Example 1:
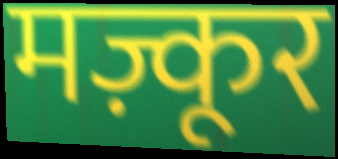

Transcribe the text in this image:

मज़्कूर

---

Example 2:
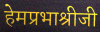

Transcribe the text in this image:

हेमप्रभाश्रीजी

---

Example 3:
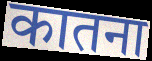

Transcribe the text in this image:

कातना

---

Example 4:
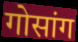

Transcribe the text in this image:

गोसांग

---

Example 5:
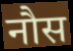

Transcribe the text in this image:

नौस